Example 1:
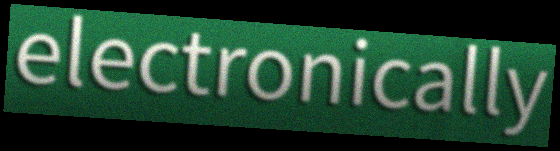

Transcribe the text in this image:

electronically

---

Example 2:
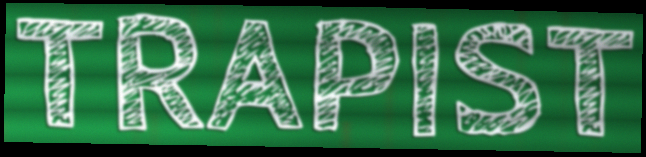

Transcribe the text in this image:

TRAPIST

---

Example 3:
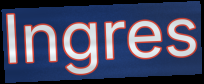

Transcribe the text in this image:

Ingres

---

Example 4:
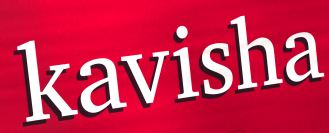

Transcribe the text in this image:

kavisha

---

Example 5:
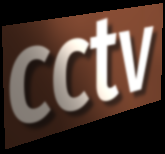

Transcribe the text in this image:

cctv